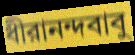
ধীরানন্দবাবু